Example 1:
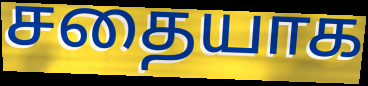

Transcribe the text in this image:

சதையாக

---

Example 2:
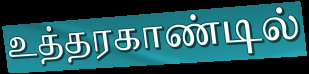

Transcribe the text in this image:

உத்தரகாண்டில்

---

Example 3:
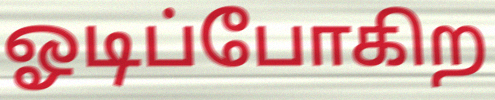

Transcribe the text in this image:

ஓடிப்போகிற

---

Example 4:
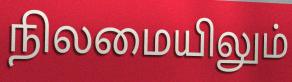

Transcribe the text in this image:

நிலமையிலும்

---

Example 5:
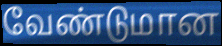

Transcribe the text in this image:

வேண்டுமான